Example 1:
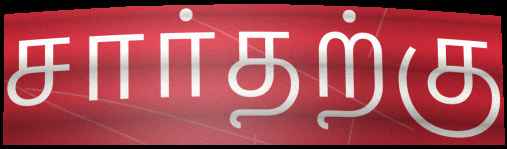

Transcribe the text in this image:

சார்தற்கு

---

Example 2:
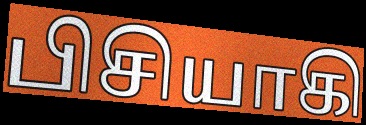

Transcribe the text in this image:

பிசியாகி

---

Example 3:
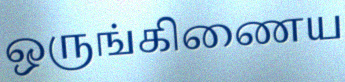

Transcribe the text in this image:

ஒருங்கிணைய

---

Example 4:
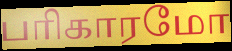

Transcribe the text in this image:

பரிகாரமோ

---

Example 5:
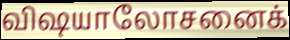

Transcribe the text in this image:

விஷயாலோசனைக்